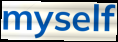
myself